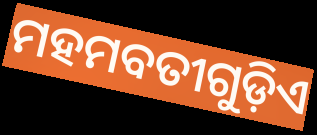
ମହମବତୀଗୁଡ଼ିଏ